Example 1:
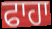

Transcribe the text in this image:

ਫਾਹਾ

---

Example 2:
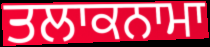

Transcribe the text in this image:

ਤਲਾਕਨਾਮਾ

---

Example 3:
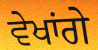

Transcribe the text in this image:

ਵੇਖਾਂਗੇ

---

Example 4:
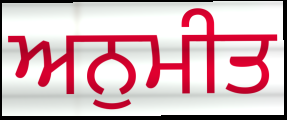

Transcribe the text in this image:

ਅਨੁਮੀਤ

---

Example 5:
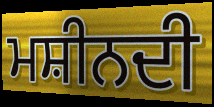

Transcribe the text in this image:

ਮਸ਼ੀਨਦੀ